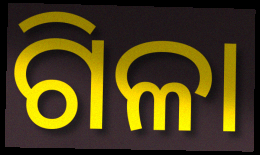
ଗିଳା